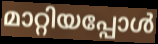
മാറ്റിയപ്പോൾ